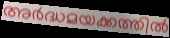
അർദ്ധമയക്കത്തിൽ